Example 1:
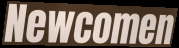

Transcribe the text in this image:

Newcomen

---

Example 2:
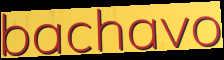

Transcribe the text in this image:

bachavo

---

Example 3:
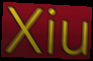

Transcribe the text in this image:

Xiu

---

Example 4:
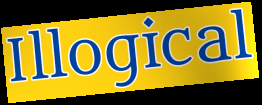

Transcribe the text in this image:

Illogical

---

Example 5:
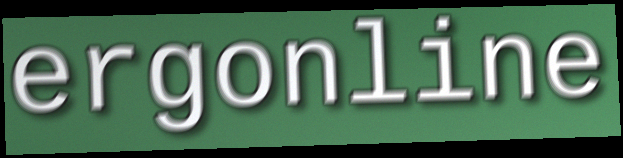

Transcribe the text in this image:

ergonline